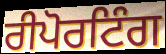
ਰੀਪੋਰਟਿੰਗ